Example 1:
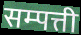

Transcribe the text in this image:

सम्पत्ती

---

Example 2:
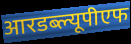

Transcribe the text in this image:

आरडब्ल्यूपीएफ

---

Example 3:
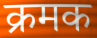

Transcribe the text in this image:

क्रमक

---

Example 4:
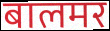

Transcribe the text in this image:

बालमर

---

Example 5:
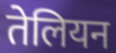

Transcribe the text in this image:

तेलियन